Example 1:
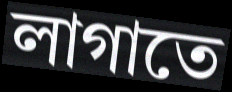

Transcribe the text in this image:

লাগাতে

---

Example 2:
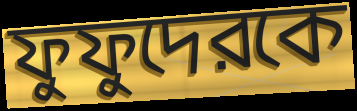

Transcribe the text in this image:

ফুফুদেরকে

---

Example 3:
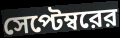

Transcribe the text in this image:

সেপ্টেম্বরের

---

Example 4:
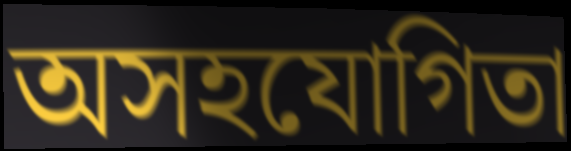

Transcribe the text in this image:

অসহযোগিতা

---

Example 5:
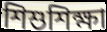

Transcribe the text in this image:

শিশুশিক্ষা